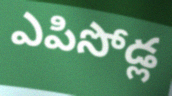
ఎపిసోడ్ల